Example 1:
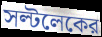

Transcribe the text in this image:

সল্টলেকের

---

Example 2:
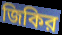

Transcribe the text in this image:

জিকির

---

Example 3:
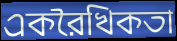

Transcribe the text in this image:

একরৈখিকতা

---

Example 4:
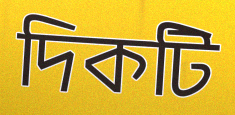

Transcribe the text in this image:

দিকটি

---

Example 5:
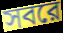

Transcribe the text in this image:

সবরে